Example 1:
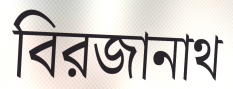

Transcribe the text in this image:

বিরজানাথ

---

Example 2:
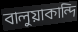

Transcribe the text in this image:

বালুয়াকান্দি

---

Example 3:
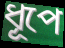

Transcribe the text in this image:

ধূপে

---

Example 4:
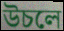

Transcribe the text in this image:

উচলে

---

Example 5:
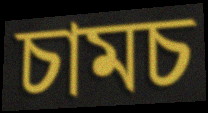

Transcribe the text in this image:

চামচ